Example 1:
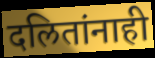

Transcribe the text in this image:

दलितांनाही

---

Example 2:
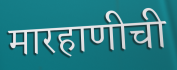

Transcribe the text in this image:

मारहाणीची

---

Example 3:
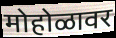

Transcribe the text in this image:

मोहोळावर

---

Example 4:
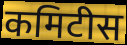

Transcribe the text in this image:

कमिटीस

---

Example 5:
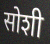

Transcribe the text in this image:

सोशी